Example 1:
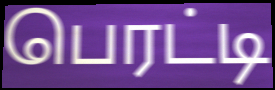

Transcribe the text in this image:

பெரட்டி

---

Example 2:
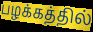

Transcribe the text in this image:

பழக்கத்தில்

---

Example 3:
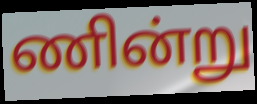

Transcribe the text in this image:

ணின்று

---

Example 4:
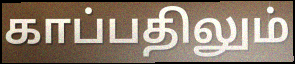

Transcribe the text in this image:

காப்பதிலும்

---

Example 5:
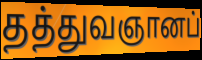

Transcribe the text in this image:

தத்துவஞானப்